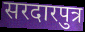
सरदारपुत्र